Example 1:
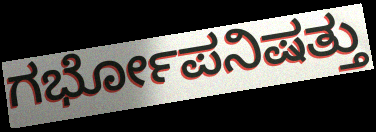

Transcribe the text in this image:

ಗರ್ಭೋಪನಿಷತ್ತು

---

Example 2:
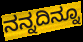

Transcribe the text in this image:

ನನ್ನದಿನ್ನೂ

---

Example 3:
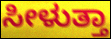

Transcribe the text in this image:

ಸೀಳುತ್ತಾ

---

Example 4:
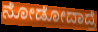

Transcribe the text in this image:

ನೋಡೋದಾದ್ರೆ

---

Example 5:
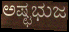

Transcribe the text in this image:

ಅಷ್ಟಭುಜ